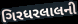
ગિરધરલાલની